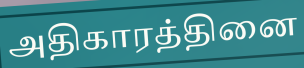
அதிகாரத்தினை